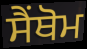
ਸੈਂਥੋਮ